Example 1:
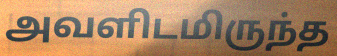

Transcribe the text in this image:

அவளிடமிருந்த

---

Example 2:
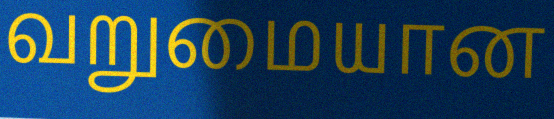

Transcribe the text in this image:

வறுமையான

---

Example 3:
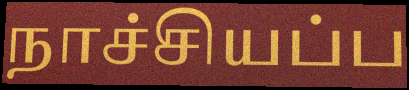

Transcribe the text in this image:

நாச்சியப்ப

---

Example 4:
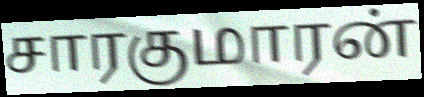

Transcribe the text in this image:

சாரகுமாரன்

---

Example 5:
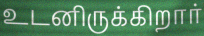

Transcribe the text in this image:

உடனிருக்கிறார்